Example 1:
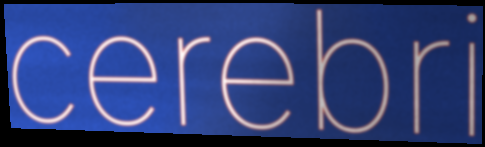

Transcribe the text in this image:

cerebri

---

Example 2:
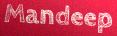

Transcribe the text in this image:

Mandeep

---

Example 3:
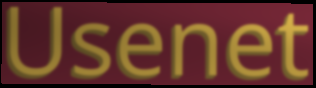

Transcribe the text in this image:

Usenet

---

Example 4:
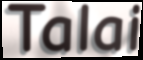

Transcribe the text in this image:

Talai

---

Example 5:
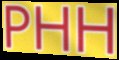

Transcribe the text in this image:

PHH